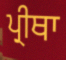
ਪ੍ਰੀਥਾ